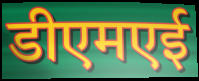
डीएमएई